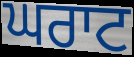
ਘਰਾਟ